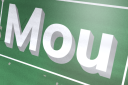
Mou